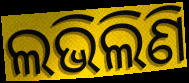
ଲଭିଲିଣି